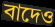
বাদেও